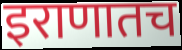
इराणातच